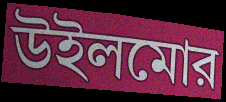
উইলমোর